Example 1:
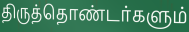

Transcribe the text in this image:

திருத்தொண்டர்களும்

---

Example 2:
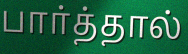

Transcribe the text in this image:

பார்த்தால்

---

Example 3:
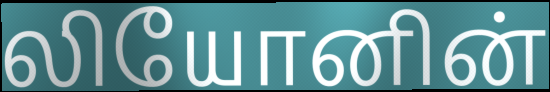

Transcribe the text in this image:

லியோனின்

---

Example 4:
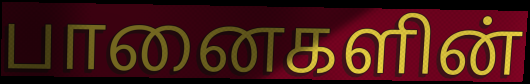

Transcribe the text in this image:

பானைகளின்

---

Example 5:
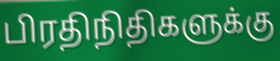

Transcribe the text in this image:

பிரதிநிதிகளுக்கு